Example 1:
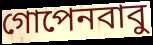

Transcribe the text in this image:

গোপেনবাবু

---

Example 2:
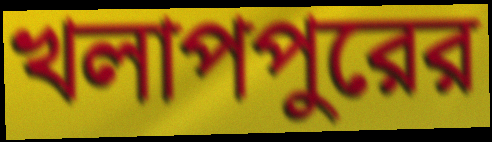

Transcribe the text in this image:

খলাপপুরের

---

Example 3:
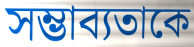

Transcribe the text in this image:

সম্ভাব্যতাকে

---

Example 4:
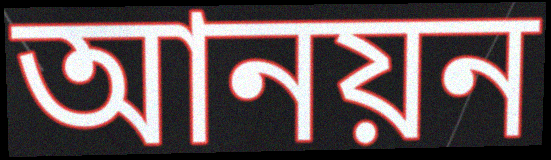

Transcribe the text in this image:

আনয়ন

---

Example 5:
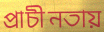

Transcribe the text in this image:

প্রাচীনতায়